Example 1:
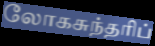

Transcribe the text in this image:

லோகசுந்தரிப்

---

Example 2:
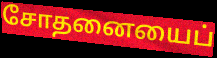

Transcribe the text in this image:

சோதனையைப்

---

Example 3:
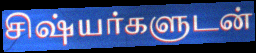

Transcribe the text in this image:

சிஷ்யர்களுடன்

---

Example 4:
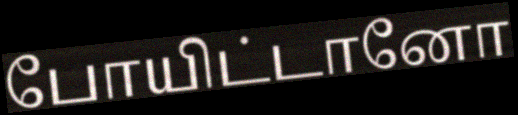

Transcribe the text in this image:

போயிட்டானோ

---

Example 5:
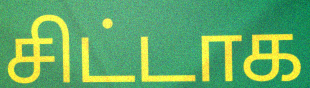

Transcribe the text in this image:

சிட்டாக